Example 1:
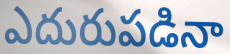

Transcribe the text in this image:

ఎదురుపడినా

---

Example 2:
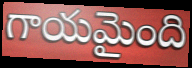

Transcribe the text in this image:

గాయమైంది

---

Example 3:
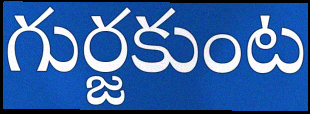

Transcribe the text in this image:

గుర్జకుంట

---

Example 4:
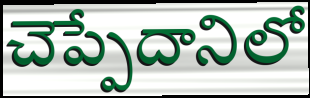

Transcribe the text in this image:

చెప్పేదానిలో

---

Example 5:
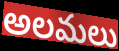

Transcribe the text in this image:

అలమలు